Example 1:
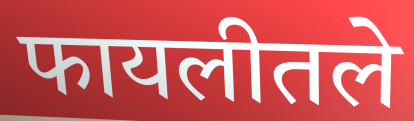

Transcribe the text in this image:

फायलीतले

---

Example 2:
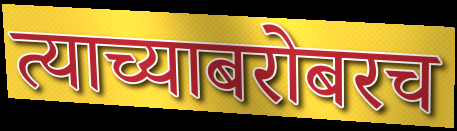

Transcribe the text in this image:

त्याच्याबरोबरच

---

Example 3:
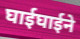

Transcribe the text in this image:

घाईघाईने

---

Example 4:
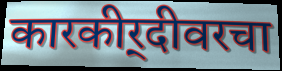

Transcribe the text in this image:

कारकीर्दीवरचा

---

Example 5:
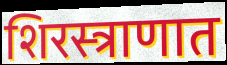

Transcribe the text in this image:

शिरस्त्राणात